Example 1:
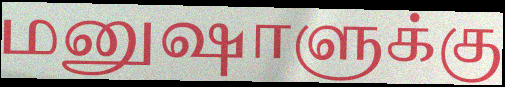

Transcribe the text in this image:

மனுஷாளுக்கு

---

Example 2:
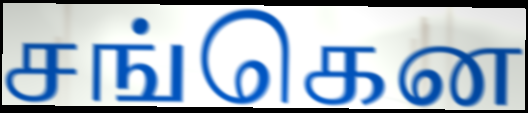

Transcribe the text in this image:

சங்கென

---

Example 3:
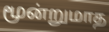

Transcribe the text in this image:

மூன்றுமாத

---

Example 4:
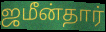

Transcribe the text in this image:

ஜமீன்தார்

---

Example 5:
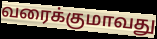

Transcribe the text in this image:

வரைக்குமாவது